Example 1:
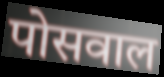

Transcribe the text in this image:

पोसवाल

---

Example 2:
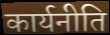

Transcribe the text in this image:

कार्यनीति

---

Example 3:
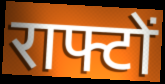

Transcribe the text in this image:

राफ्टों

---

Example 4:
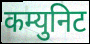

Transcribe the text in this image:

कम्युनिट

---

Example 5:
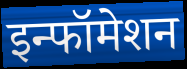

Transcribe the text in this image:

इन्फॉमेशन